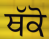
ਥੱਕੋ